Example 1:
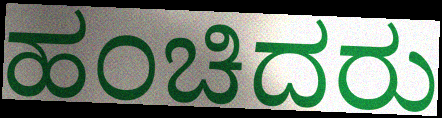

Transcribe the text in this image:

ಹಂಚಿದರು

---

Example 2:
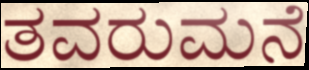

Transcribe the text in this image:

ತವರುಮನೆ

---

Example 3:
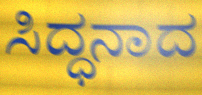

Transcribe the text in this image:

ಸಿದ್ಧನಾದ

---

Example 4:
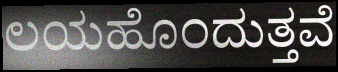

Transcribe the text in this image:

ಲಯಹೊಂದುತ್ತವೆ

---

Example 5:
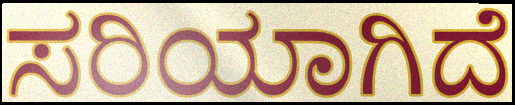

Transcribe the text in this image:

ಸರಿಯಾಗಿದೆ